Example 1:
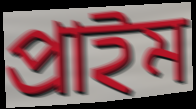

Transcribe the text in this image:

প্রাইম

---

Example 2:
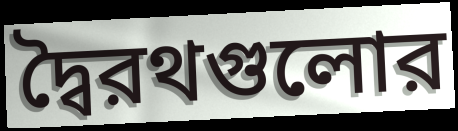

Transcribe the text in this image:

দ্বৈরথগুলোর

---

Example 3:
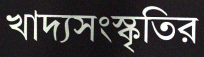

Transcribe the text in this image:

খাদ্যসংস্কৃতির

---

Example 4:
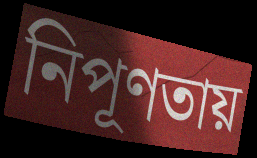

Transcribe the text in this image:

নিপূণতায়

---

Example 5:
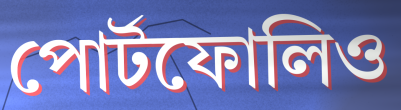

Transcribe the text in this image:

পোর্টফোলিও